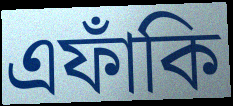
এফাঁকি